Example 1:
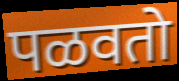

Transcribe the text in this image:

पळवतो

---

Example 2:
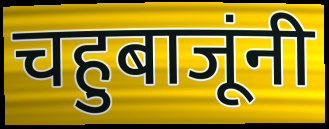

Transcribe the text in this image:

चहुबाजूंनी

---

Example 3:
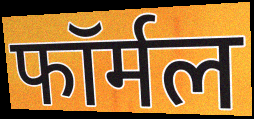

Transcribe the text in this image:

फॉर्मल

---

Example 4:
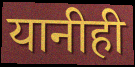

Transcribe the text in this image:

यानीही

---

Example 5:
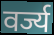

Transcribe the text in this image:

वर्ज्य